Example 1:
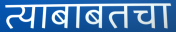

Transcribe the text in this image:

त्याबाबतचा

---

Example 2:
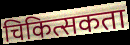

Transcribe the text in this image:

चिकित्सकता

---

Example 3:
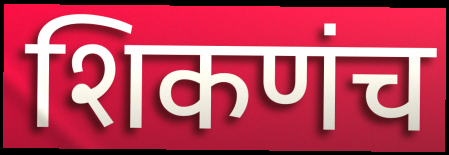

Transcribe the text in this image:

शिकणंच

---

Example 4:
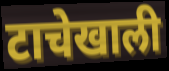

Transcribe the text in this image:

टाचेखाली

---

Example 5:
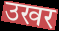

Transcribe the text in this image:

उखर